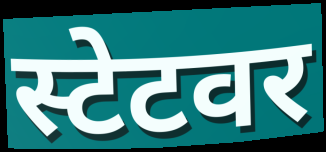
स्टेटवर